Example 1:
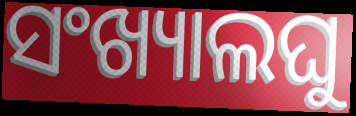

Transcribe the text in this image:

ସଂଖ୍ୟାଲଘୁ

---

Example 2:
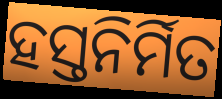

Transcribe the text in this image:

ହସ୍ତନିର୍ମିତ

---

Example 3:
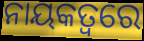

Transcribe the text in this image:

ନାୟକତ୍ବରେ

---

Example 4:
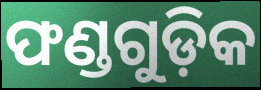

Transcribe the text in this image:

ଫଣ୍ଡଗୁଡ଼ିକ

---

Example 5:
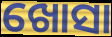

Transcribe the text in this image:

ଖୋସା